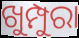
ଖୁମ୍ପୁରା